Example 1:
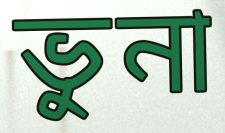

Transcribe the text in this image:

ভুনা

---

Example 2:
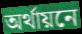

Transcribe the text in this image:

অর্থায়নে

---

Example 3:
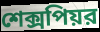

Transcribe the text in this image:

শেক্সপিয়র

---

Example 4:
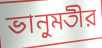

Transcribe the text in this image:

ভানুমতীর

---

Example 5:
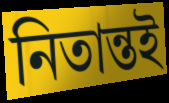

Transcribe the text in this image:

নিতান্তই